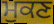
ਮੁਕਣ